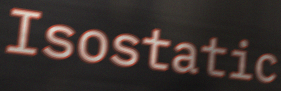
Isostatic